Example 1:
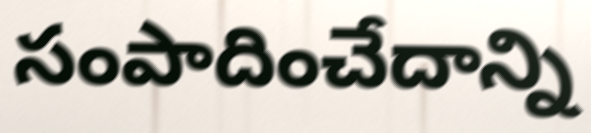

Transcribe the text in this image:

సంపాదించేదాన్ని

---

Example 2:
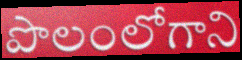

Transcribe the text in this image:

పొలంలోగాని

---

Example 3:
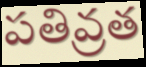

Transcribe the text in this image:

పతివ్రత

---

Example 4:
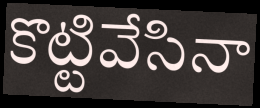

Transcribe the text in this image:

కొట్టివేసినా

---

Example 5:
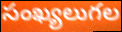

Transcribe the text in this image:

సంఖ్యలుగల